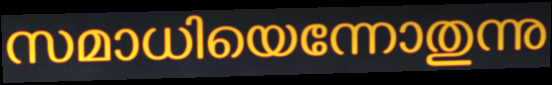
സമാധിയെന്നോതുന്നു